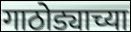
गाठोड्याच्या